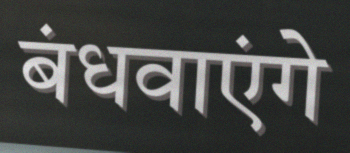
बंधवाएंगे